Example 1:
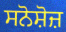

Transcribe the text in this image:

ਸਨੋਸ਼ੋਜ਼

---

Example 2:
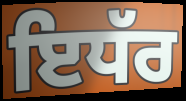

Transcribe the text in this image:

ਇਧੱਰ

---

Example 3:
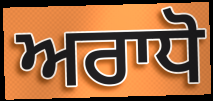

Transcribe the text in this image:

ਅਰਾਧੋ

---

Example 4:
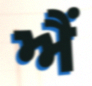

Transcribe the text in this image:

ਐਂ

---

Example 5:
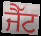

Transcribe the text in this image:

ਜੈੱਟ